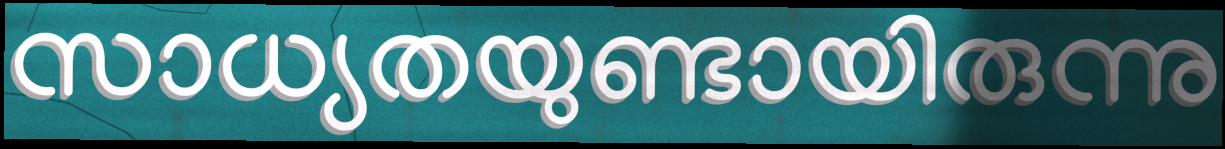
സാധ്യതയുണ്ടായിരുന്നു